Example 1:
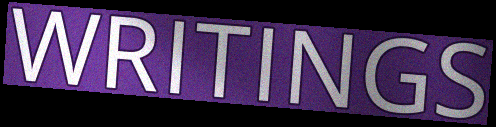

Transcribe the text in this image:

WRITINGS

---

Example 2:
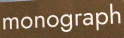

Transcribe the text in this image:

monograph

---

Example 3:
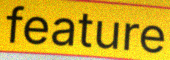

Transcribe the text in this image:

feature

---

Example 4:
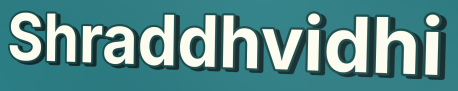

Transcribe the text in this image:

Shraddhvidhi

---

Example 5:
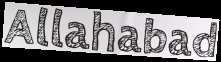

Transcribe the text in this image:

Allahabad